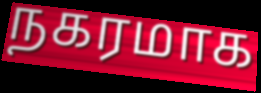
நகரமாக